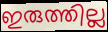
ഇരുത്തില്ല